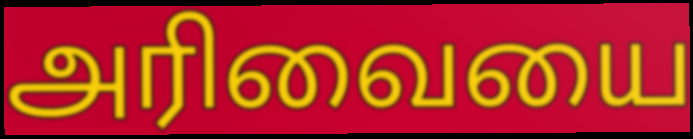
அரிவையை